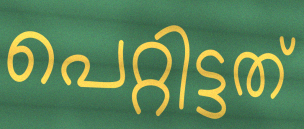
പെറ്റിട്ടത്